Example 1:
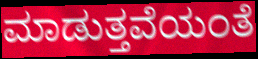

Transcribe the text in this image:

ಮಾಡುತ್ತವೆಯಂತೆ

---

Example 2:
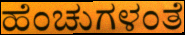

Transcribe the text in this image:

ಹೆಂಚುಗಳಂತೆ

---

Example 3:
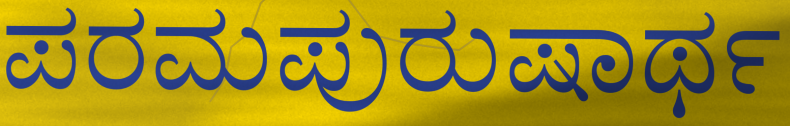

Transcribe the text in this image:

ಪರಮಪುರುಷಾರ್ಥ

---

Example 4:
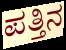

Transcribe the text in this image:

ಪತ್ತಿನ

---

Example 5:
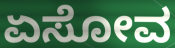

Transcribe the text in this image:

ಏಸೋವ